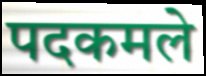
पदकमले